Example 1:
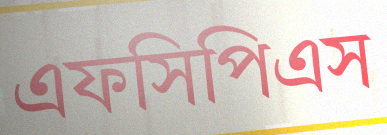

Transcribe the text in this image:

এফসিপিএস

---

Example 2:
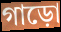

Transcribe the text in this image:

গাড়ো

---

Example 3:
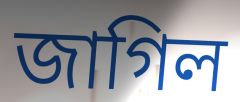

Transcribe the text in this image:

জাগিল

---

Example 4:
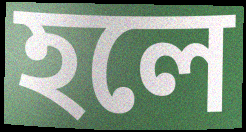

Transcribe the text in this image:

হলে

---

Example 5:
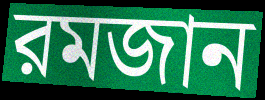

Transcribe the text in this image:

রমজান